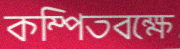
কম্পিতবক্ষে